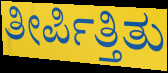
ತೀರ್ಪಿತ್ತಿತು